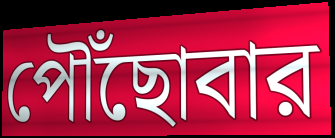
পৌঁছোবার